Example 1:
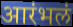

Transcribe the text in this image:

आरंभलं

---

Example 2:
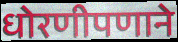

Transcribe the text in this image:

धोरणीपणाने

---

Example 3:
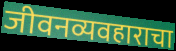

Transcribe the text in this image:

जीवनव्यवहाराचा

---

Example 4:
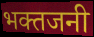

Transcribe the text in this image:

भक्तजनी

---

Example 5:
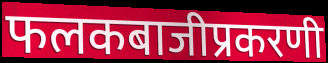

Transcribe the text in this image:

फलकबाजीप्रकरणी